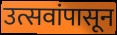
उत्सवांपासून